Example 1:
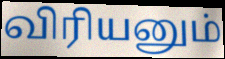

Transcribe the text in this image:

விரியனும்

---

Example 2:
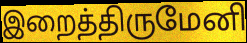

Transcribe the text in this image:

இறைத்திருமேனி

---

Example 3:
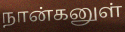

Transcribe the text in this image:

நான்கனுள்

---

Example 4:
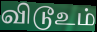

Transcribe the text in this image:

விடூஉம்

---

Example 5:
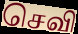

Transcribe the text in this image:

செவி